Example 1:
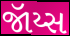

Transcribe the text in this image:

જૉય્સ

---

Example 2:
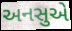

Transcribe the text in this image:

અનસુએ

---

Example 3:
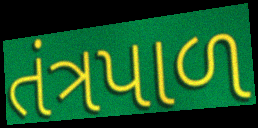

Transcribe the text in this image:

તંત્રપાળ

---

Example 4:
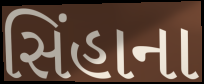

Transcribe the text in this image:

સિંહાના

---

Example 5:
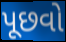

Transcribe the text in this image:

પૂછવો